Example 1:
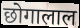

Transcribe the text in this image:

छोगालाल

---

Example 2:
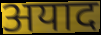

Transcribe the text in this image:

अयाद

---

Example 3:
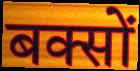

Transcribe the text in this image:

बक्सों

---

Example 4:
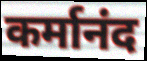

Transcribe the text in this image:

कर्मानंद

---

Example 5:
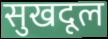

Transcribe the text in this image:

सुखदूल